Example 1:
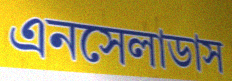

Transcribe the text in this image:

এনসেলাডাস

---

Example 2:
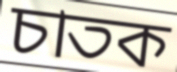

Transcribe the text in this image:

চাতক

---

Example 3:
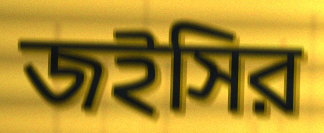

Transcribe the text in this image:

জইসির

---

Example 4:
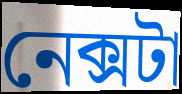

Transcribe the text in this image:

নেক্সটা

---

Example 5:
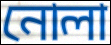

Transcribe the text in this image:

নোলা